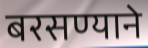
बरसण्याने